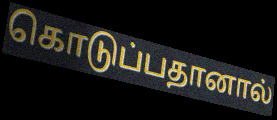
கொடுப்பதானால்